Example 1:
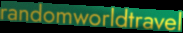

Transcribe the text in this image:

randomworldtravel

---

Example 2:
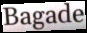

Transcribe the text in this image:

Bagade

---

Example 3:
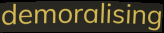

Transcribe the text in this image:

demoralising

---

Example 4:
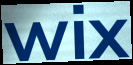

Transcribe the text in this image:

wix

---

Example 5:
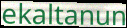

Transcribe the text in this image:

ekaltanun